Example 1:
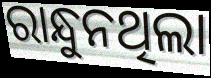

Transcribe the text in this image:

ରାନ୍ଧୁନଥିଲା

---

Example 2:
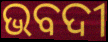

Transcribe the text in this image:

ଭବଦୀ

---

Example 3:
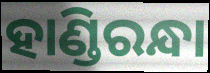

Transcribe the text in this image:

ହାଣ୍ଡିରନ୍ଧା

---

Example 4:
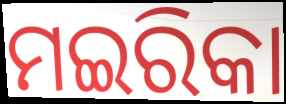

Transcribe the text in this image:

ମଇରିକା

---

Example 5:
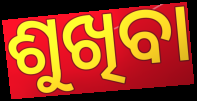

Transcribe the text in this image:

ଶୁଖିବା